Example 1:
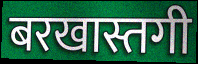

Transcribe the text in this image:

बरखास्तगी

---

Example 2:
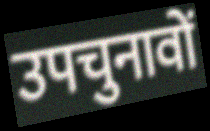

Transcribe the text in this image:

उपचुनावों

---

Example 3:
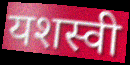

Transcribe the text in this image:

यशस्वी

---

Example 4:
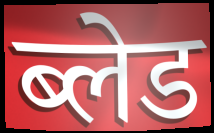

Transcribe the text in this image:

ब्लेड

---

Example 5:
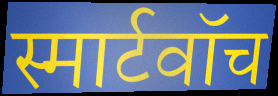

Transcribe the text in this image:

स्मार्टवॉच